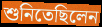
শুনিতেছিলেন